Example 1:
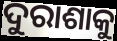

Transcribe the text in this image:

ଦୁରାଶାକୁ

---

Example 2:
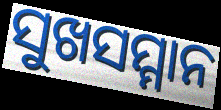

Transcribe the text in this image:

ସୁଖସମ୍ମାନ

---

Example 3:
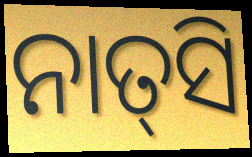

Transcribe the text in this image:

ନାତ୍‌ସି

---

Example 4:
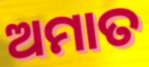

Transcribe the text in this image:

ଅମାତ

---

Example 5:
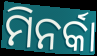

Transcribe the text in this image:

ମିନର୍କା